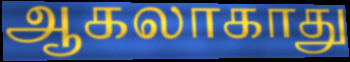
ஆகலாகாது